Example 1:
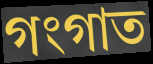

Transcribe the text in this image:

গংগাত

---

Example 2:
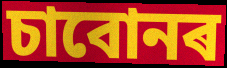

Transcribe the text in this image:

চাবোনৰ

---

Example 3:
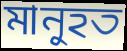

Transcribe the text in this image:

মানুহত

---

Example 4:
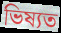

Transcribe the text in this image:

ভিষ্যত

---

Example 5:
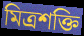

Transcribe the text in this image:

মিত্ৰশক্তি